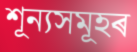
শূন্যসমূহৰ